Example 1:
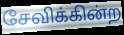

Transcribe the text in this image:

சேவிக்கின்ற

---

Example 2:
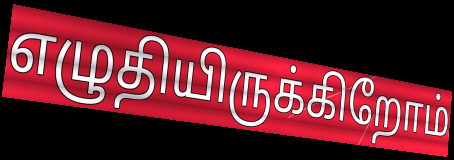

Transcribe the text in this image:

எழுதியிருக்கிறோம்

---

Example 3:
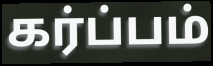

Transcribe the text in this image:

கர்ப்பம்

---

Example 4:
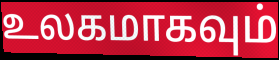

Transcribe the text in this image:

உலகமாகவும்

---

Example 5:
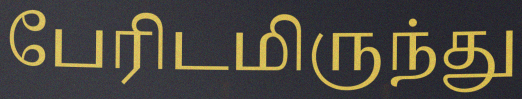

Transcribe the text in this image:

பேரிடமிருந்து